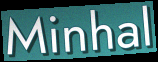
Minhal